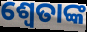
ଶ୍ୱେତାଙ୍କ